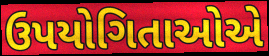
ઉપયોગિતાઓએ